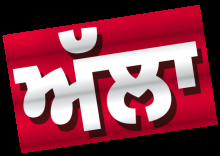
ਅੱਲਾ